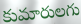
కుమారులగు